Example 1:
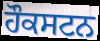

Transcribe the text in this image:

ਹੌਕਸਟਨ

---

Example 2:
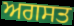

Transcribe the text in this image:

ਅਗਸਤ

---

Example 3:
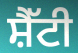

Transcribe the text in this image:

ਸ਼ੈੱਟੀ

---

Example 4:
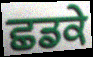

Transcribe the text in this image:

ਛਡਕੇ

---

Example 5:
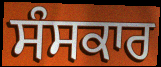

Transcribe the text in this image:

ਸੰਸਕਾਰ